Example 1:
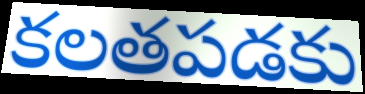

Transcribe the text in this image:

కలతపడకు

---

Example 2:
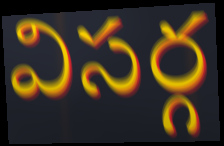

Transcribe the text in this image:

విసర్గ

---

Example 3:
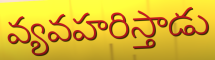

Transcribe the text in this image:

వ్యవహరిస్తాడు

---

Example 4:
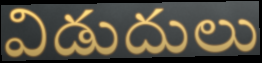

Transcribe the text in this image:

విడుదులు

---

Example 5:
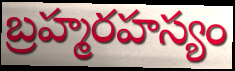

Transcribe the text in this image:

బ్రహ్మరహస్యం